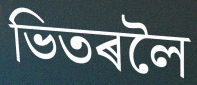
ভিতৰলৈ